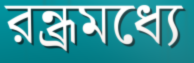
রন্ধ্রমধ্যে